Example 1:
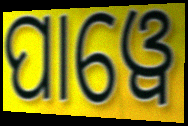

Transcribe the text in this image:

ପାୱେ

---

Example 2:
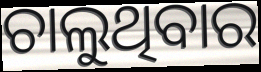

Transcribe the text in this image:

ଚାଲୁଥିବାର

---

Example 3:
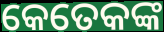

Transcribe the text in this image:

କେତେକଙ୍କ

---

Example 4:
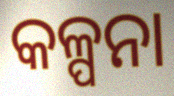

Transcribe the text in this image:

କଳ୍ପନା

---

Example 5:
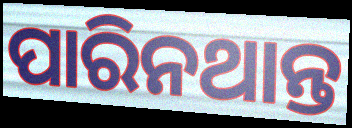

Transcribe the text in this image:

ପାରିନଥାନ୍ତ